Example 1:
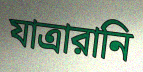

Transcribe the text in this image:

যাত্রারানি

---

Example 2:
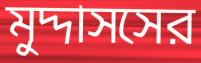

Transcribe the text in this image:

মুদ্দাসসের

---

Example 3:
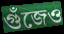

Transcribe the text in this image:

গুঁজেও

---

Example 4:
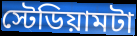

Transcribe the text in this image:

স্টেডিয়ামটা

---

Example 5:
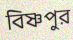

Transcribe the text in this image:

বিষ্ণপুর